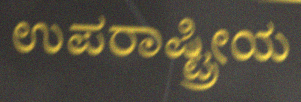
ಉಪರಾಷ್ಟ್ರೀಯ